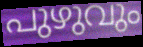
പുഴുവും